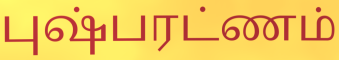
புஷ்பரட்ணம்